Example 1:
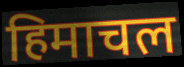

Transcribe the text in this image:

हिमाचल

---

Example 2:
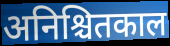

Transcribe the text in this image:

अनिश्चितकाल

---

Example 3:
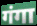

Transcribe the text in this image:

गंगा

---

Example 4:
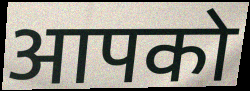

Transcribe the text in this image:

आपको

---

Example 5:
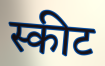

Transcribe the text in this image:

स्कीट